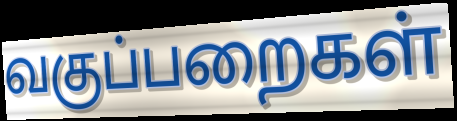
வகுப்பறைகள்